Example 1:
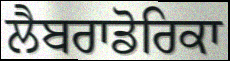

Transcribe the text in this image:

ਲੈਬਰਾਡੋਰਿਕਾ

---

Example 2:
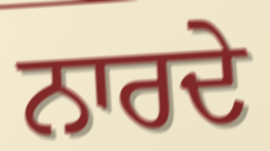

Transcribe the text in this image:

ਨਾਰਦੇ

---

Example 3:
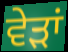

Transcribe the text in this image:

ਵੇੜਾਂ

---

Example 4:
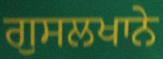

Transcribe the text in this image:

ਗੁਸਲਖਾਨੇ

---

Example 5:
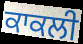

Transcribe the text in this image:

ਕਾਕਲੀ